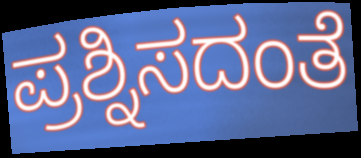
ಪ್ರಶ್ನಿಸದಂತೆ